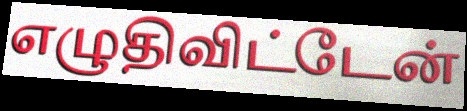
எழுதிவிட்டேன்